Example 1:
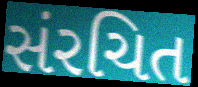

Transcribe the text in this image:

સંરચિત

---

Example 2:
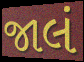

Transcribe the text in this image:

જાલં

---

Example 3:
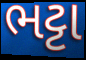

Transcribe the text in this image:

ભટ્ટા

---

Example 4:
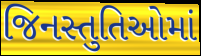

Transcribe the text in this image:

જિનસ્તુતિઓમાં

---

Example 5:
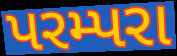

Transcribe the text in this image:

પરમ્પરા